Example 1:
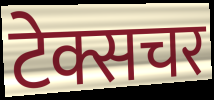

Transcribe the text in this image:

टेक्सचर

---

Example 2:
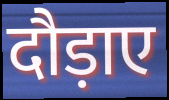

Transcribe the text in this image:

दौड़ाए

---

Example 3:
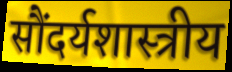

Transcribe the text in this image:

सौंदर्यशास्त्रीय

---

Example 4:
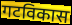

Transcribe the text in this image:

गटविकास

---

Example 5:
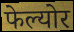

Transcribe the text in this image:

फेल्योर